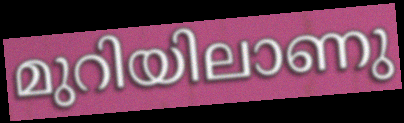
മുറിയിലാണു